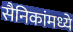
सैनिकांमध्ये